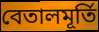
বেতালমূর্তি